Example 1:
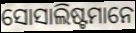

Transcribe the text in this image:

ସୋସାଲିଷ୍ଟମାନେ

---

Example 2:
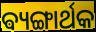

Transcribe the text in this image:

ଵ୍ୟଙ୍ଗାର୍ଥକ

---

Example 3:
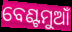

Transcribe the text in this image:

ବେଣ୍ଟମୁଆଁ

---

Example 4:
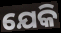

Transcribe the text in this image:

ଯେକି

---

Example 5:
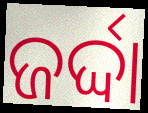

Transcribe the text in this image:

ଜର୍ଦ୍ଦା